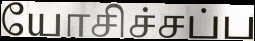
யோசிச்சப்ப